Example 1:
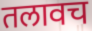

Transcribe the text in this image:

तलावच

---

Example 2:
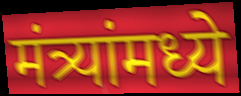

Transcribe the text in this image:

मंत्र्यांमध्ये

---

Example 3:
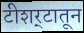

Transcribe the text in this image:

टीशर्टातून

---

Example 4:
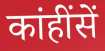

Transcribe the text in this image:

कांहींसें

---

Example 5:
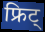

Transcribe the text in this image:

फ्रिट्